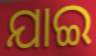
ଯାଇ